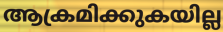
ആക്രമിക്കുകയില്ല